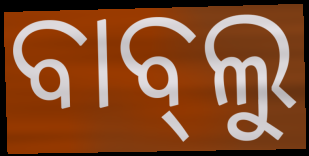
ବାବ୍‍ଲୁ